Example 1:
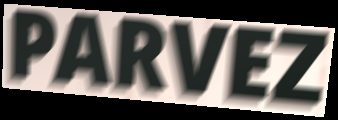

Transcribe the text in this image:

PARVEZ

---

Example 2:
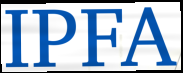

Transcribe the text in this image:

IPFA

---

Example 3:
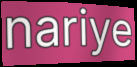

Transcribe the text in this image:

nariye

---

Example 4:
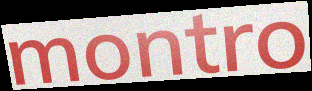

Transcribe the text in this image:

montro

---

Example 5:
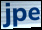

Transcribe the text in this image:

jpe